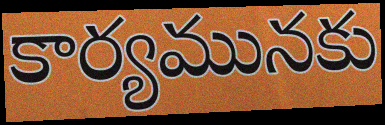
కార్యమునకు